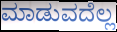
ಮಾಡುವದೆಲ್ಲ